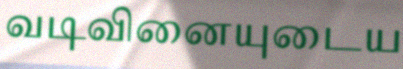
வடிவினையுடைய